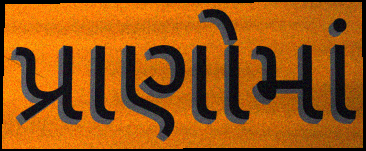
પ્રાણોમાં